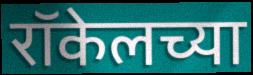
रॉकेलच्या